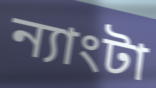
ন্যাংটা